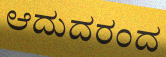
ಆದುದರಂದ